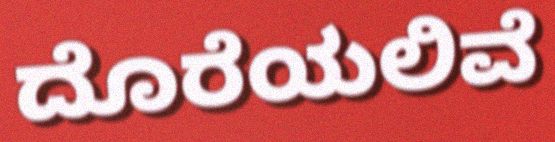
ದೊರೆಯಲಿವೆ